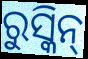
ରୁସ୍କିନ୍